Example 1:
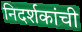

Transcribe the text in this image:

निदर्शकांची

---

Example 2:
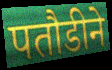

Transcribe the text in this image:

पतौडीने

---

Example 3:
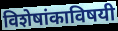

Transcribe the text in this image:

विशेषांकाविषयी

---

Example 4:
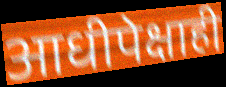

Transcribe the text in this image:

आधीपेक्षाही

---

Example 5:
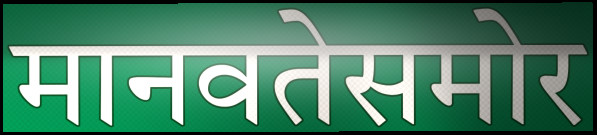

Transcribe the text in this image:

मानवतेसमोर